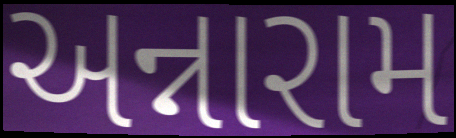
અન્નારામ